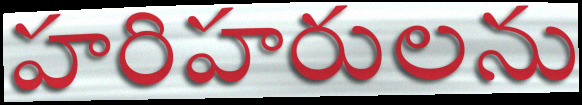
హరిహరులను